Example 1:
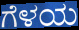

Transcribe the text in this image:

ಗೆಳಯ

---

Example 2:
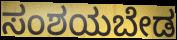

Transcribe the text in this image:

ಸಂಶಯಬೇಡ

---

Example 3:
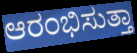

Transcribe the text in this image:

ಆರಂಭಿಸುತ್ತಾ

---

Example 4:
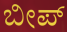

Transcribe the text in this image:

ಬೀಪ್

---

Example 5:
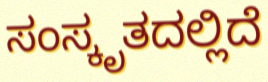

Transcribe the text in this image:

ಸಂಸ್ಕೃತದಲ್ಲಿದೆ